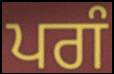
ਪਗੰ